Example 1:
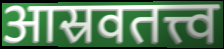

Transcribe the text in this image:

आस्रवतत्त्व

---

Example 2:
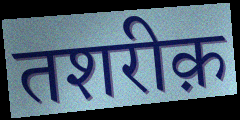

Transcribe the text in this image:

तशरीक़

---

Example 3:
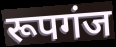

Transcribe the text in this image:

रूपगंज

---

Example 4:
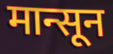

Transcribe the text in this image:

मान्सून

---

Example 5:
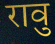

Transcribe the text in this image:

रावु